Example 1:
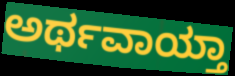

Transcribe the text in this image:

ಅರ್ಥವಾಯ್ತಾ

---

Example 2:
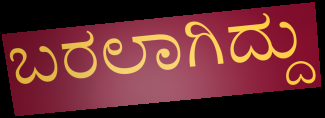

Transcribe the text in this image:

ಬರಲಾಗಿದ್ದು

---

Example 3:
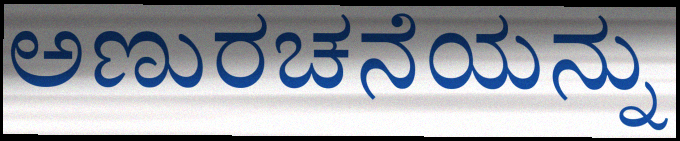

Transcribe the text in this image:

ಅಣುರಚನೆಯನ್ನು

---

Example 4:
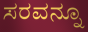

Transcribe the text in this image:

ಸರವನ್ನೂ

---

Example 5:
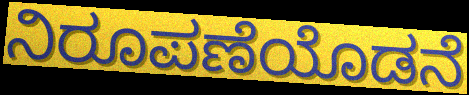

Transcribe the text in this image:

ನಿರೂಪಣೆಯೊಡನೆ